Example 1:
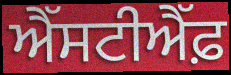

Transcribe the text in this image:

ਐੱਸਟੀਐੱਫ਼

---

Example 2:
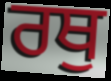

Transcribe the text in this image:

ਰਥੁ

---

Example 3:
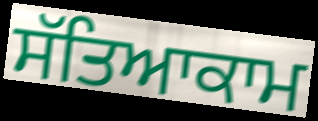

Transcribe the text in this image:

ਸੱਤਿਆਕਾਮ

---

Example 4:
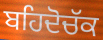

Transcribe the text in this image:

ਬਹਿਦੋਚੱਕ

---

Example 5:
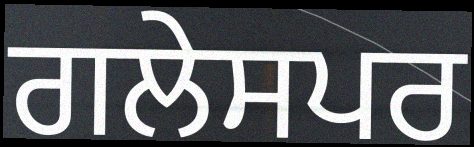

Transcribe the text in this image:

ਗਲੇਸਪਰ